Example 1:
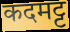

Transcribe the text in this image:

कदमट्ट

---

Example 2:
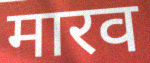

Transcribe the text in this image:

मारव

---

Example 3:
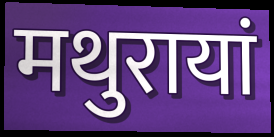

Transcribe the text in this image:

मथुरायां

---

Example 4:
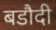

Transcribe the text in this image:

बडौदी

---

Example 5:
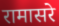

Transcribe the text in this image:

रामासरे